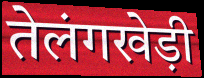
तेलंगखेड़ी